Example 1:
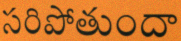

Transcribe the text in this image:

సరిపోతుందా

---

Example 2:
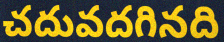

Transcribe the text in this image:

చదువదగినది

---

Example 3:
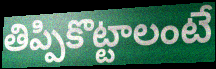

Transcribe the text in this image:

తిప్పికొట్టాలంటే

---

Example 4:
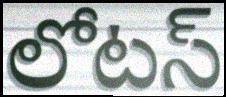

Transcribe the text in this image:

లోటస్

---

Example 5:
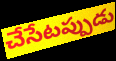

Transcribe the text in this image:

చేసేటప్పుడు